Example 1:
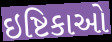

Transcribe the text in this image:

ઇષ્ટિકાઓ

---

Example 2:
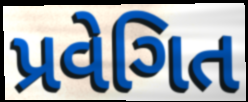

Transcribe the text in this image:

પ્રવેગિત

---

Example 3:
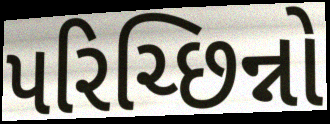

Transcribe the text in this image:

પરિચ્છિન્નો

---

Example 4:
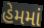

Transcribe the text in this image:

હેમમાં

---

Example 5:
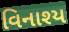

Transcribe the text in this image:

વિનાશ્ય